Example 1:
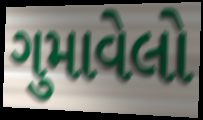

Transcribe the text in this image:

ગુમાવેલો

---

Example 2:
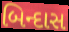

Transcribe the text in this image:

બિન્દાસ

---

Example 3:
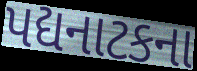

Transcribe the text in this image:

પદ્યનાટકના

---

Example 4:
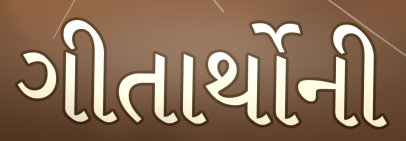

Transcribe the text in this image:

ગીતાર્થોની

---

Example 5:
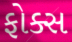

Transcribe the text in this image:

ફોક્સ